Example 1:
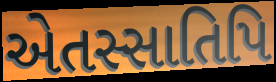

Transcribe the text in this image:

એતસ્સાતિપિ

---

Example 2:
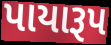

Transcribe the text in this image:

પાયારૂપ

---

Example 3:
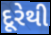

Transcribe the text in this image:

દૂરેથી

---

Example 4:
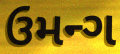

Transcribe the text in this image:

ઉમન્ગ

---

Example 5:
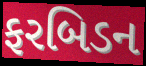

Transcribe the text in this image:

ફરબિડન